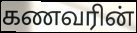
கணவரின்